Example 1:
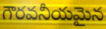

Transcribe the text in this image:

గౌరవనీయమైన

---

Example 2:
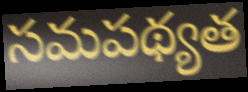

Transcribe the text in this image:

సమపథ్యత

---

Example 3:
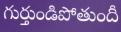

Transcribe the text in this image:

గుర్తుండిపోతుందీ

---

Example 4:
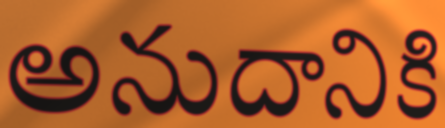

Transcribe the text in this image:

అనుదానికి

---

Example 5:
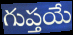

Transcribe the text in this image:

గుప్తయే